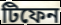
টিফেন